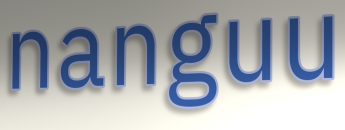
nanguu